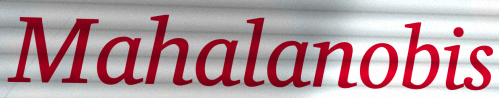
Mahalanobis